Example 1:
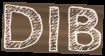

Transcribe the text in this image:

DIB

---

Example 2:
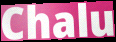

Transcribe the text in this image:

Chalu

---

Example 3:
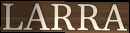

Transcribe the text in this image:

LARRA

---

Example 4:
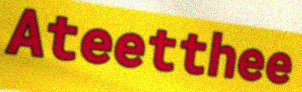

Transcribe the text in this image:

Ateetthee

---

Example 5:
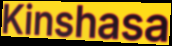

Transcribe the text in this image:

Kinshasa